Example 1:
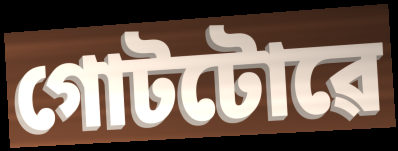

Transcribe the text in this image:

গোটটোৱে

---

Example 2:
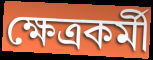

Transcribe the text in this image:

ক্ষেত্ৰকৰ্মী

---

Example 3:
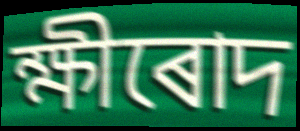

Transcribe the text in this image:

ক্ষীৰোদ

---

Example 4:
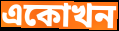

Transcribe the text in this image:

একোখন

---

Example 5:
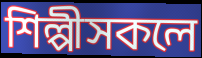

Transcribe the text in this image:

শিল্পীসকলে